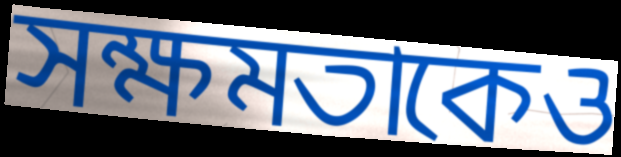
সক্ষমতাকেও